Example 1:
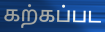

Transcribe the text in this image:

கற்கப்பட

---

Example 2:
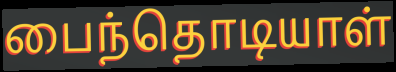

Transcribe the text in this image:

பைந்தொடியாள்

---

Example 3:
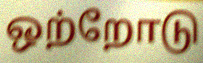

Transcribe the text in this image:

ஒற்றோடு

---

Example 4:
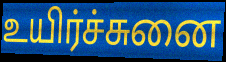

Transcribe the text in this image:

உயிர்ச்சுனை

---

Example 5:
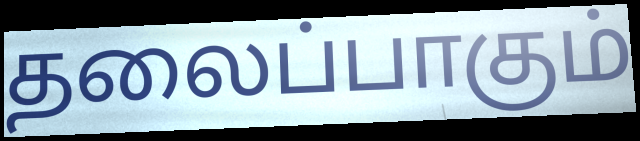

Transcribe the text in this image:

தலைப்பாகும்